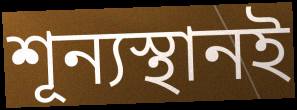
শূন্যস্থানই